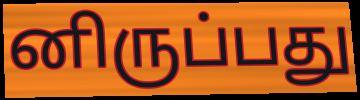
னிருப்பது